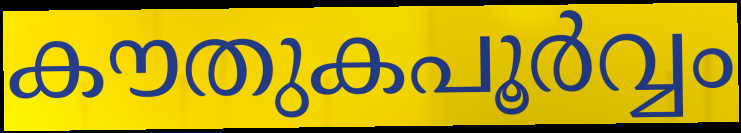
കൗതുകപൂർവ്വം